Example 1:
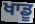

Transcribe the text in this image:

ਖਾਡੂ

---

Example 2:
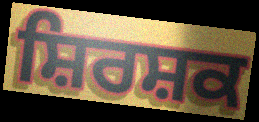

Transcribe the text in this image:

ਸ਼ਿਰਸ਼ਕ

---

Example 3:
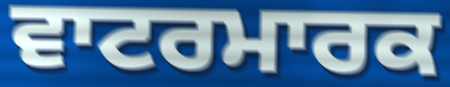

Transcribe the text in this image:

ਵਾਟਰਮਾਰਕ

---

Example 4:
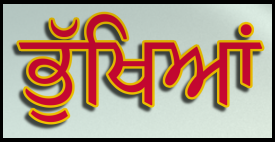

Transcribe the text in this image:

ਭੁੱਖਿਆਂ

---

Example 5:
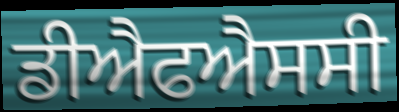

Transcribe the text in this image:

ਡੀਐਫਐਸਸੀ